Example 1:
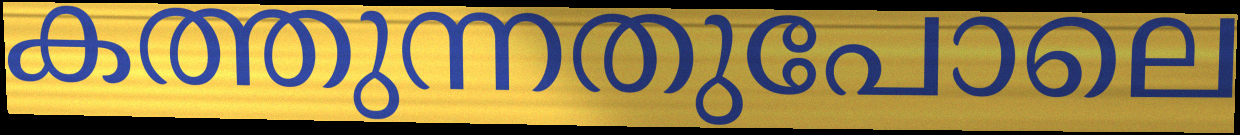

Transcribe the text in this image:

കത്തുന്നതുപോലെ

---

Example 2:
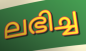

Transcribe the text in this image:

ലഭിച്ച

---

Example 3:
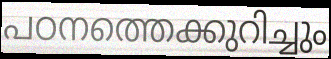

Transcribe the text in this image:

പഠനത്തെക്കുറിച്ചും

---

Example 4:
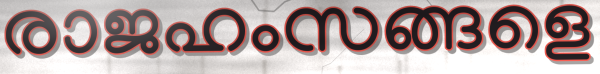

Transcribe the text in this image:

രാജഹംസങ്ങളെ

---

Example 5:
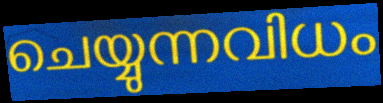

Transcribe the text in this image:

ചെയ്യുന്നവിധം